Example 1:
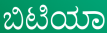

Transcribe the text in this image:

ಬಿಟಿಯಾ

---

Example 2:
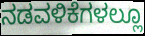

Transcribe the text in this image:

ನಡವಳಿಕೆಗಳಲ್ಲೂ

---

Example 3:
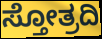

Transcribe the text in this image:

ಸ್ತೋತ್ರದಿ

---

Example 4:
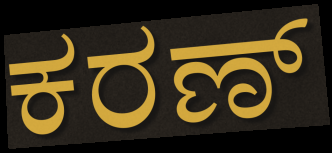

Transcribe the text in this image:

ಕರಣ್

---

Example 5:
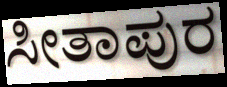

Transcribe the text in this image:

ಸೀತಾಪುರ